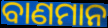
ବାଣମାନ